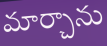
మార్చాను